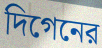
দিগেনের